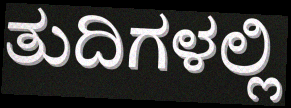
ತುದಿಗಳಲ್ಲಿ